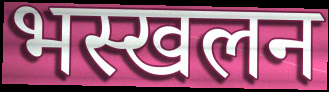
भस्खलन